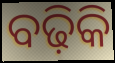
ବଢ଼ିକି